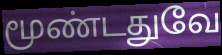
மூண்டதுவே